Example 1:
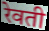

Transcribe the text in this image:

रेवती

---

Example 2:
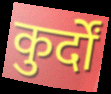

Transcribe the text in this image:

कुर्दों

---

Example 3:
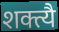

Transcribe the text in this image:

शक्त्यै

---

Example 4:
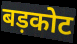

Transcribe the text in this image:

बड़कोट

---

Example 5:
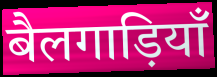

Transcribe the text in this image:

बैलगाड़ियाँ